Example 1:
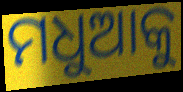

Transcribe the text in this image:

ମଧୁଆକୁ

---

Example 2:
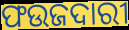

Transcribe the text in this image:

ଫଉଜଦାରୀ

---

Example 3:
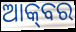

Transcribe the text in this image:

ଆକ୍‌ବର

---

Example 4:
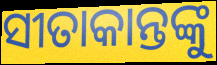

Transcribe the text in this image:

ସୀତାକାନ୍ତଙ୍କୁ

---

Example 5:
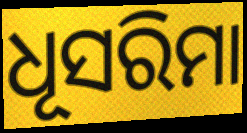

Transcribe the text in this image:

ଧୂସରିମା